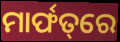
ମାର୍ଫତ୍‌ରେ